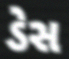
ડેસ